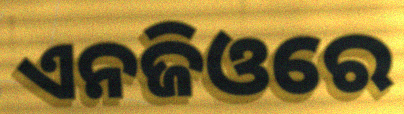
ଏନଜିଓରେ